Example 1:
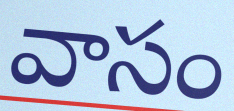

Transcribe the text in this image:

వాసం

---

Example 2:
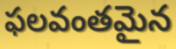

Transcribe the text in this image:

ఫలవంతమైన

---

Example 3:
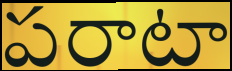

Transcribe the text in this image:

పరాటా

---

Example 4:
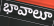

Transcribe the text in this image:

భావాలూ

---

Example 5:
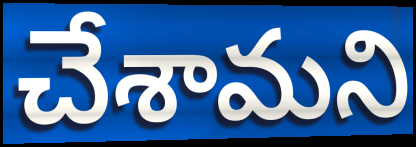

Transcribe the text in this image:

చేశామని